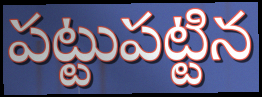
పట్టుపట్టిన